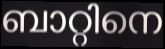
ബാറ്റിനെ